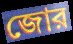
জোর